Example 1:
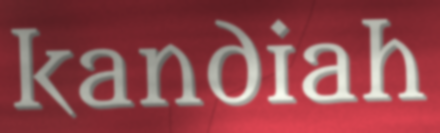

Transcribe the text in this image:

kandiah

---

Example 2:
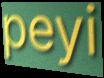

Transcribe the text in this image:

peyi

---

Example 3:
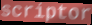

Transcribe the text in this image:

scriptor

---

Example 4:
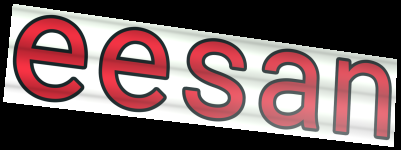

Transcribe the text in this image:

eesan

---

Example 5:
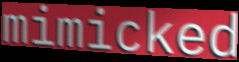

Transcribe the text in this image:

mimicked